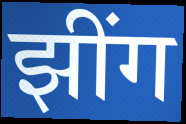
झींग